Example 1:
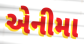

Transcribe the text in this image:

એનીમા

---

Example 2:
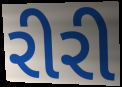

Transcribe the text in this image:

રીરી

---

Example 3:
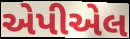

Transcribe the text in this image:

એપીએલ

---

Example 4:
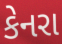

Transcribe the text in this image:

કેનરા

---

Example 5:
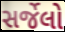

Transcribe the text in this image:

સર્જેલો